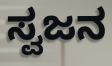
ಸ್ವಜನ